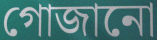
গোজানো